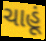
ચાહૂં